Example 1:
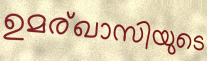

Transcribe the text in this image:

ഉമര്ഖാസിയുടെ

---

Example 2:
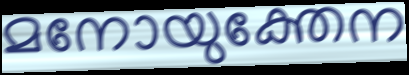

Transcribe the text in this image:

മനോയുക്തേന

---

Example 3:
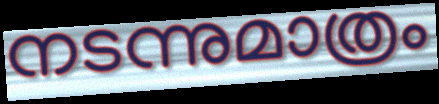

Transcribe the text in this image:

നടന്നുമാത്രം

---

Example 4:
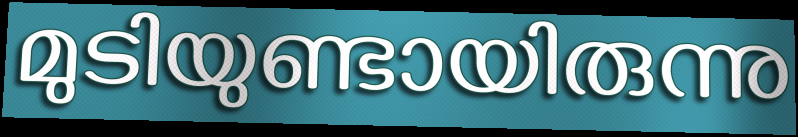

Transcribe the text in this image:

മുടിയുണ്ടായിരുന്നു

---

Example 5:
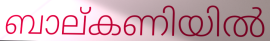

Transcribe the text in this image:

ബാല്കണിയിൽ